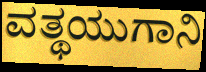
ವತ್ಥಯುಗಾನಿ